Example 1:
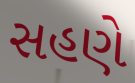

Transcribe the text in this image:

સહણે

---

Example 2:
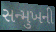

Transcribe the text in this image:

સન્મુખની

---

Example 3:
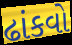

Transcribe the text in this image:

ઢાંકવો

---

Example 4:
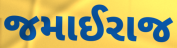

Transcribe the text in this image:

જમાઈરાજ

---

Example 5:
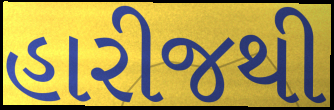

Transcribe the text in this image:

હારીજથી